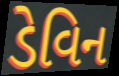
ડેવિન